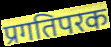
प्रगतिपरक